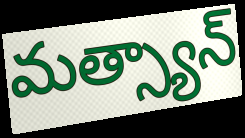
మత్స్యాన్